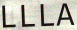
LLLA